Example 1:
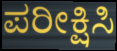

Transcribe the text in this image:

ಪರೀಕ್ಷಿಸಿ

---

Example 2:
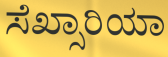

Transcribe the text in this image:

ಸೆಖ್ಸಾರಿಯಾ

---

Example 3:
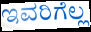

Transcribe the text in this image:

ಇವರಿಗೆಲ್ಲ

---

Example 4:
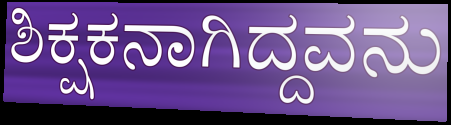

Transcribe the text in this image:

ಶಿಕ್ಷಕನಾಗಿದ್ದವನು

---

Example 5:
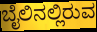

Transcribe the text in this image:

ಬೈಲಿನಲ್ಲಿರುವ